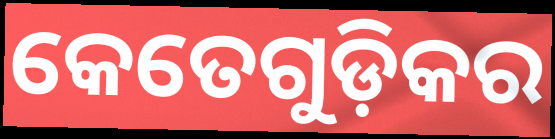
କେତେଗୁଡ଼ିକର